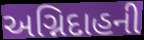
અગ્નિદાહની